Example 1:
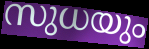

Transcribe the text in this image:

സുധയും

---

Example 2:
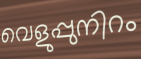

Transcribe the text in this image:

വെളുപ്പുനിറം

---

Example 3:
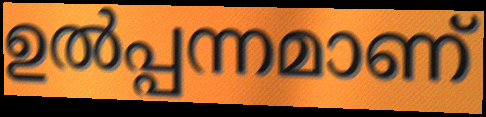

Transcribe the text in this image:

ഉൽപ്പന്നമാണ്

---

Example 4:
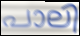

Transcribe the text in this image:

പാലി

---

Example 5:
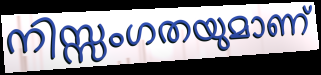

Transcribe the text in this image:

നിസ്സംഗതയുമാണ്